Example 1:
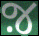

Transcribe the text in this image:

જ઼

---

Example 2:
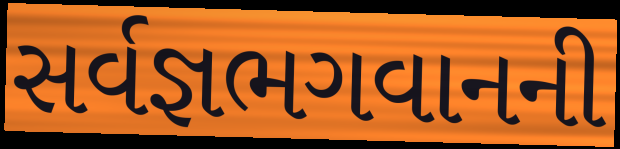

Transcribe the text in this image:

સર્વજ્ઞભગવાનની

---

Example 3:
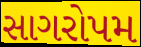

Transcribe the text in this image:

સાગરોપમ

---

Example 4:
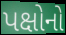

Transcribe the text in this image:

પક્ષોનો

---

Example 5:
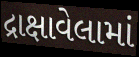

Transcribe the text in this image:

દ્રાક્ષાવેલામાં